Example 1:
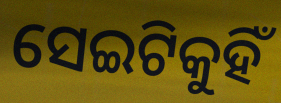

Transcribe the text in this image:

ସେଇଟିକୁହିଁ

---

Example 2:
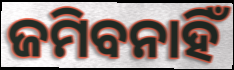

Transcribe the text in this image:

ଜମିବନାହିଁ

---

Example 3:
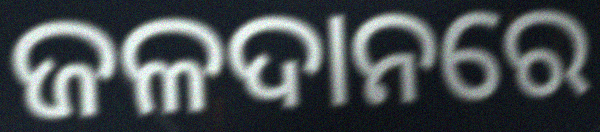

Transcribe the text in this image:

ଜଳଦାନରେ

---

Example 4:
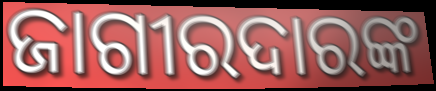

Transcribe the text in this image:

ଜାଗୀରଦାରଙ୍କ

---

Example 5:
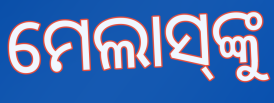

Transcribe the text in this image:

ମେଲାସ୍‌ଙ୍କୁ